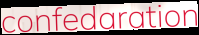
confedaration